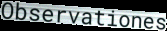
Observationes